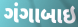
ગંગાબાઇ